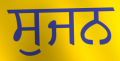
ਸੁਜਨ